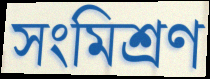
সংমিশ্ৰণ